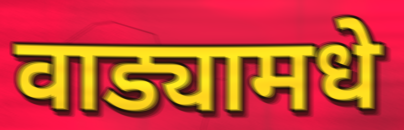
वाड्यामधे